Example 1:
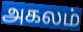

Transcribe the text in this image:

அகலம்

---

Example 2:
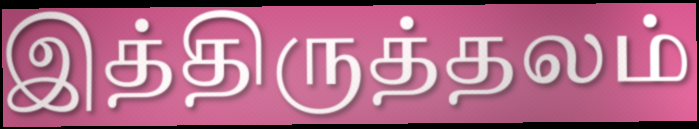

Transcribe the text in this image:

இத்திருத்தலம்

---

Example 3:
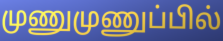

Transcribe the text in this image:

முணுமுணுப்பில்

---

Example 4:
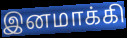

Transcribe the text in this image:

இனமாக்கி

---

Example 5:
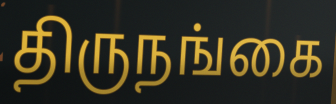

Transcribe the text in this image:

திருநங்கை